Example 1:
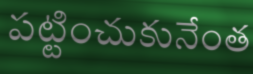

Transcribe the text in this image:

పట్టించుకునేంత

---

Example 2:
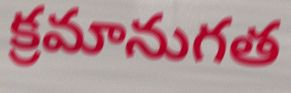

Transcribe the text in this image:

క్రమానుగత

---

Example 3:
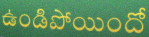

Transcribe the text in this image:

ఉండిపోయిందో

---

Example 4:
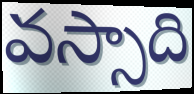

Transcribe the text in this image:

వస్సాది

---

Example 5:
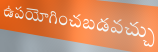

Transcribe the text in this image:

ఉపయోగించబడవచ్చు